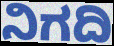
ನಿಗದಿ